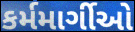
કર્મમાર્ગીઓ